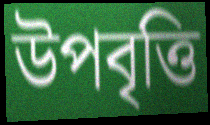
উপবৃত্তি